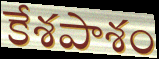
కేశపాశం